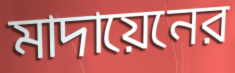
মাদায়েনের